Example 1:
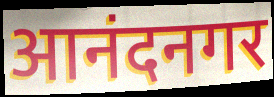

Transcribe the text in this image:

आनंदनगर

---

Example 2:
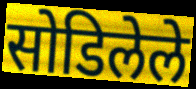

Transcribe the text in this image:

सोडिलेले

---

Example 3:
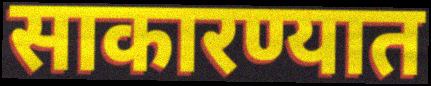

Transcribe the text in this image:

साकारण्यात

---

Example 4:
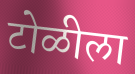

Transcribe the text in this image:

टोळीला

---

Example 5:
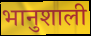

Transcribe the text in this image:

भानुशाली